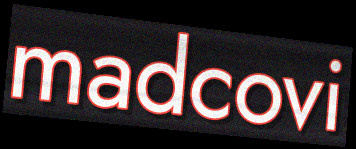
madcovi